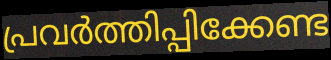
പ്രവർത്തിപ്പിക്കേണ്ട